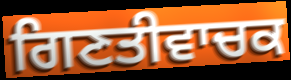
ਗਿਣਤੀਵਾਚਕ